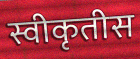
स्वीकृतीस